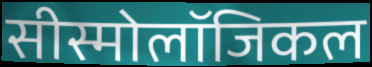
सीस्मोलॉजिकल